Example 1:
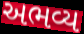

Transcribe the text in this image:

અભવ્ય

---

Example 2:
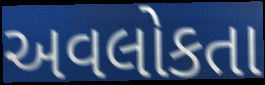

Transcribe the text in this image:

અવલોકતા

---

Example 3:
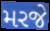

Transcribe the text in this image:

મરજે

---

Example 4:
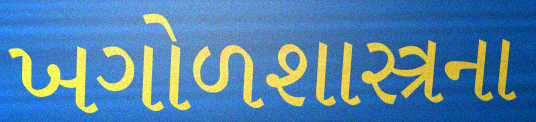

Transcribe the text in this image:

ખગોળશાસ્ત્રના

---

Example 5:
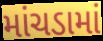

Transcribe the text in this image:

માંચડામાં